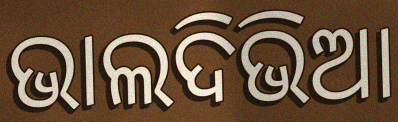
ଭାଲଦିଭିଆ